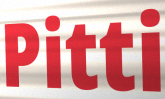
Pitti